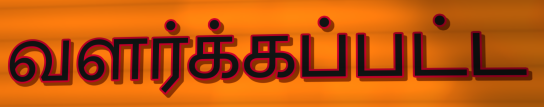
வளர்க்கப்பட்ட